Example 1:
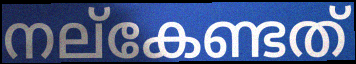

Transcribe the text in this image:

നല്കേണ്ടത്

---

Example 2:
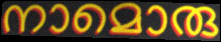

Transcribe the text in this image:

നാമൊരു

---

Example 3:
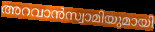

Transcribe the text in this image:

അറവാൻസ്വാമിയുമായി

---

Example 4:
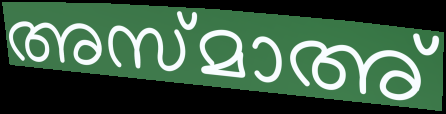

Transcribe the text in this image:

അസ്മാഅ്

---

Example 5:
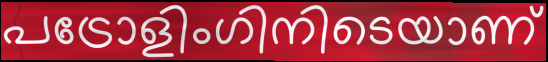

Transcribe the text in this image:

പട്രോളിംഗിനിടെയാണ്